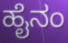
ಹೈನಂ